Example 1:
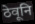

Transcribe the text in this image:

ठेवूनि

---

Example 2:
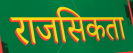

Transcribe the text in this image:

राजसिकता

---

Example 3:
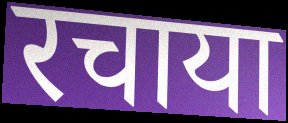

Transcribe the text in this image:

रचाया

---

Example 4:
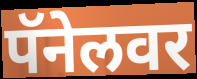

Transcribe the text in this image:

पॅनेलवर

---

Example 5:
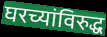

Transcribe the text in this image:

घरच्यांविरुद्ध